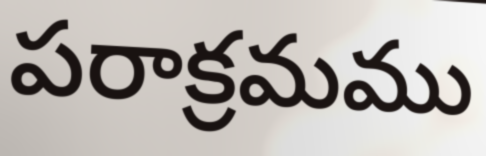
పరాక్రమము